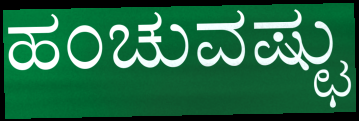
ಹಂಚುವಷ್ಟು